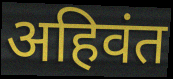
अहिवंत